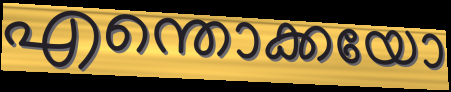
എന്തൊക്കയോ